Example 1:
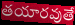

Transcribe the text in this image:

తయారవుతే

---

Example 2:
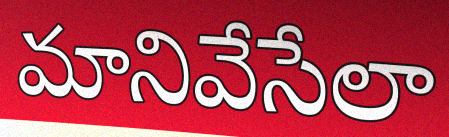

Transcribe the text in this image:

మానివేసేలా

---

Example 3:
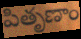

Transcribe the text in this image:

పితృణాం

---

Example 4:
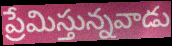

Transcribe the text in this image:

ప్రేమిస్తున్నవాడు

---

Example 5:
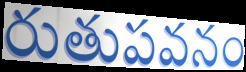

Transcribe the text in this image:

రుతుపవనం